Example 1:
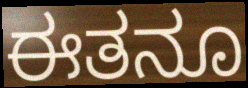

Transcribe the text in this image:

ಈತನೂ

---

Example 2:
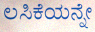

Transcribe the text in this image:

ಲಸಿಕೆಯನ್ನೇ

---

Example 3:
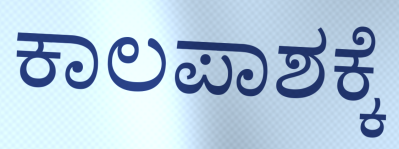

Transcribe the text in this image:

ಕಾಲಪಾಶಕ್ಕೆ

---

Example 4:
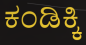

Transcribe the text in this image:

ಕಂಡಿಕ್ಕಿ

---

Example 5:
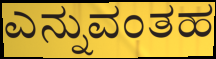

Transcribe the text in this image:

ಎನ್ನುವಂತಹ